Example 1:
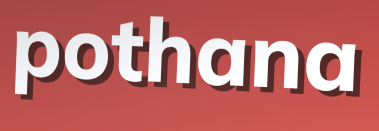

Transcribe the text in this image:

pothana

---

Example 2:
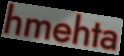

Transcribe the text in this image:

hmehta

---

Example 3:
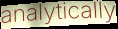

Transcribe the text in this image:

analytically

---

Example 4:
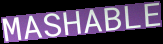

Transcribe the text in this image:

MASHABLE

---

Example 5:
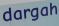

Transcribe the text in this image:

dargah